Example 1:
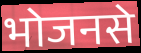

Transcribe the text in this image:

भोजनसे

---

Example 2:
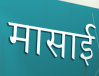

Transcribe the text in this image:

मासाई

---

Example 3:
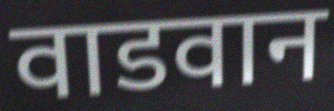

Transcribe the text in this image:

वाडवान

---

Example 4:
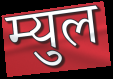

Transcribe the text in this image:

म्युल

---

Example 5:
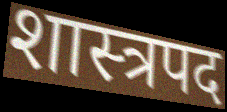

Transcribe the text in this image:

शास्त्रपद